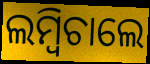
ଲମ୍ବିଚାଲେ